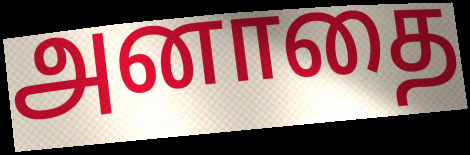
அனாதை